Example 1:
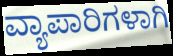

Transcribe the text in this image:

ವ್ಯಾಪಾರಿಗಳಾಗಿ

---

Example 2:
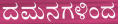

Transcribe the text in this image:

ದಮನಗಳಿಂದ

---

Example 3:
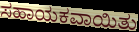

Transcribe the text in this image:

ಸಹಾಯಕವಾಯಿತು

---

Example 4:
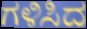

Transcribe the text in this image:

ಗಳಿಸಿದ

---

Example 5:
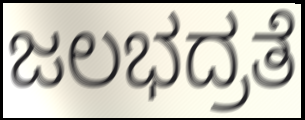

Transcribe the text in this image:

ಜಲಭದ್ರತೆ